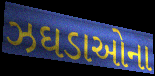
ઝઘડાઓના